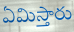
ఏమిస్తారు